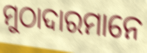
ମୁଠାଦାରମାନେ